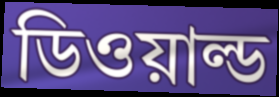
ডিওয়াল্ড